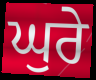
ਘੁਰੇ